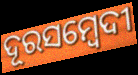
ଦୂରସମ୍ବେଦୀ